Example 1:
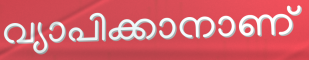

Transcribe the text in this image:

വ്യാപിക്കാനാണ്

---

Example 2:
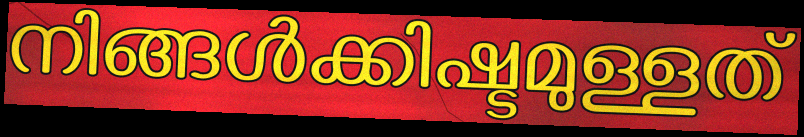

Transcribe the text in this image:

നിങ്ങൾക്കിഷ്ടമുള്ളത്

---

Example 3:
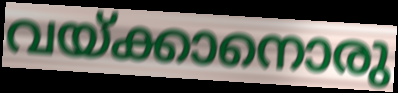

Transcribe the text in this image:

വയ്ക്കാനൊരു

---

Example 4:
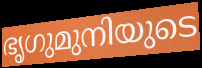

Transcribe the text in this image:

ഭൃഗുമുനിയുടെ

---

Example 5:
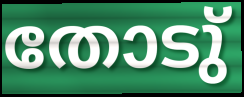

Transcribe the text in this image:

തോടു്